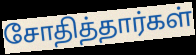
சோதித்தார்கள்